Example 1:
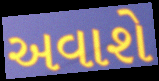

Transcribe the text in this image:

અવાશે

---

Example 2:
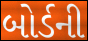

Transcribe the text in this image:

બોર્ડની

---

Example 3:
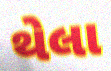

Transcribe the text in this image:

થેલા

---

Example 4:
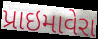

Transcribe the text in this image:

પ્રાઇમાવેરા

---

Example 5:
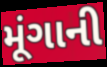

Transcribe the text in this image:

મૂંગાની